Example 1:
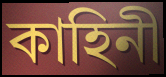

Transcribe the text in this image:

কাহিনী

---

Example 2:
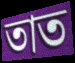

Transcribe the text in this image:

তাত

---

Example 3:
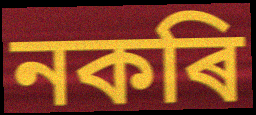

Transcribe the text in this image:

নকৰি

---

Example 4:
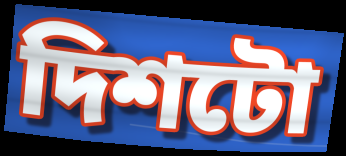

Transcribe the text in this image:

দিশটো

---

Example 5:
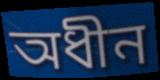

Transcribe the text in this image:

অধীন